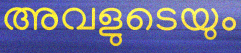
അവളുടെയും